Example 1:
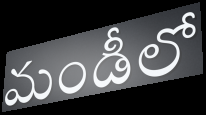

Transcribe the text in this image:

మండీలో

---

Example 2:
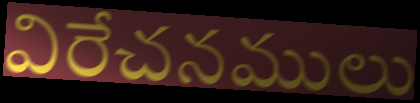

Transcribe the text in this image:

విరేచనములు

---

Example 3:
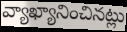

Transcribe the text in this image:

వ్యాఖ్యానించినట్లు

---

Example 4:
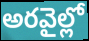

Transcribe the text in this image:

అరవైల్లో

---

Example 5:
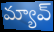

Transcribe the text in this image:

మ్యావ్